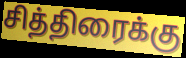
சித்திரைக்கு